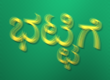
ಭಟ್ಟಿಗೆ